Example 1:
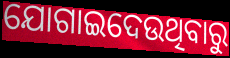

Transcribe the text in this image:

ଯୋଗାଇଦେଉଥିବାରୁ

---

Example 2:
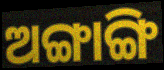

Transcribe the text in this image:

ଅଙ୍ଗାଙ୍ଗି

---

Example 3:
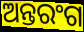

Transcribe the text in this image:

ଅନ୍ତରଂଗ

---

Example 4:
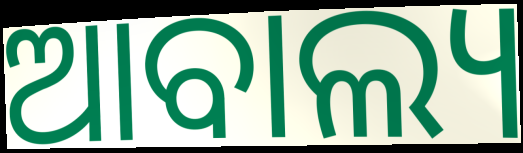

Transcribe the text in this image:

ଆବାଲ୍ୟ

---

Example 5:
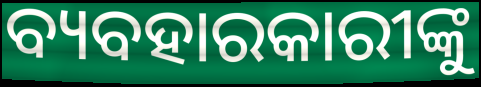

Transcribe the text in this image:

ବ୍ୟବହାରକାରୀଙ୍କୁ